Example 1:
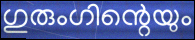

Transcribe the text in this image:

ഗുരുംഗിന്റെയും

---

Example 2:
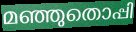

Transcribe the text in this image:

മഞ്ഞുതൊപ്പി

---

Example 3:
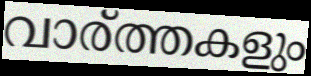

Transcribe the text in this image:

വാര്ത്തകളും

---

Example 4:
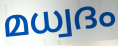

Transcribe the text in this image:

മധ്വദം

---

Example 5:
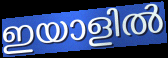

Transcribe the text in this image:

ഇയാളിൽ